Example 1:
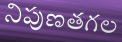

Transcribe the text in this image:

నిపుణతగల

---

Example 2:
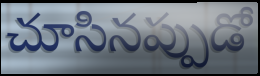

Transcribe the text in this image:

చూసినప్పుడో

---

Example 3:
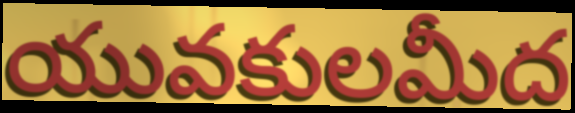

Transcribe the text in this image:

యువకులమీద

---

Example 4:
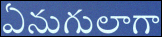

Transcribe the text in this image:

ఏనుగులాగా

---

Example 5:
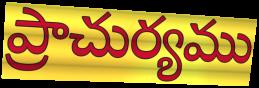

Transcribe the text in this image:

ప్రాచుర్యము